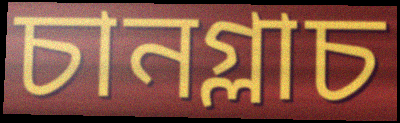
চানগ্লাচ